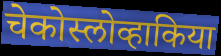
चेकोस्लोव्हाकिया